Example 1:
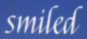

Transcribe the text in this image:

smiled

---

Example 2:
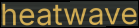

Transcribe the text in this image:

heatwave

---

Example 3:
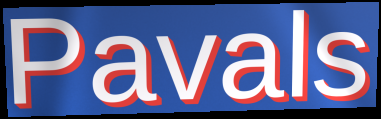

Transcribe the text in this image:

Pavals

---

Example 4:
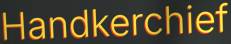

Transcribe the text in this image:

Handkerchief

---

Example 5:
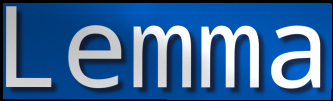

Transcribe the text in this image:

Lemma